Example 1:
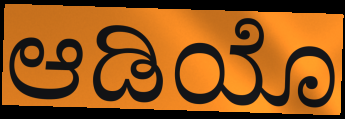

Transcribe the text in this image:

ಆಡಿಯೊ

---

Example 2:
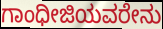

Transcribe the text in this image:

ಗಾಂಧೀಜಿಯವರೇನು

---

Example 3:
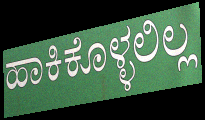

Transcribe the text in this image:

ಹಾಕಿಕೊಳ್ಳಲಿಲ್ಲ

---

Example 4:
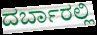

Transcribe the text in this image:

ದರ್ಬಾರಲ್ಲಿ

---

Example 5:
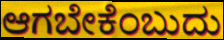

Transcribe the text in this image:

ಆಗಬೇಕೆಂಬುದು